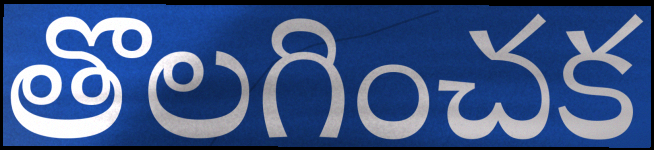
తొలగించక